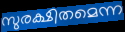
സുരക്ഷിതമെന്ന